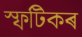
স্ফটিকৰ